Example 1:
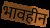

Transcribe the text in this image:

भावहीन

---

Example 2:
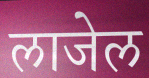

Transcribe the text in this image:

लाजेल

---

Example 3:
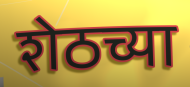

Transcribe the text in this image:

शेठच्या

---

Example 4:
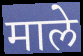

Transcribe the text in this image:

माले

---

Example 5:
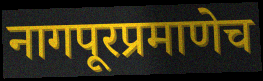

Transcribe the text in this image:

नागपूरप्रमाणेच